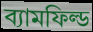
ব্যামফিল্ড